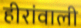
हीरांवाली